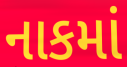
નાકમાં